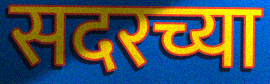
सदरच्या